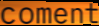
coment